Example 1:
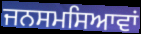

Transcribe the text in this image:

ਜਨਸਮਸਿਆਵਾਂ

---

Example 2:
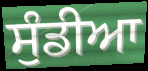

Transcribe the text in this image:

ਸੁੰਡੀਆ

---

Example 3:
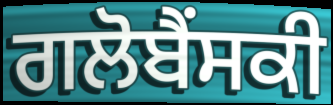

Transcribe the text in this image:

ਗਲੋਬੈਂਸਕੀ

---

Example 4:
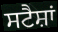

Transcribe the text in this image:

ਸਟੈਸ਼ਾਂ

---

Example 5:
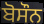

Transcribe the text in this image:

ਬੋਸੌਨ